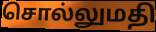
சொல்லுமதி